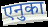
एनुका